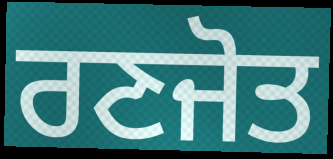
ਰਣਜੋਤ